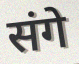
संगे